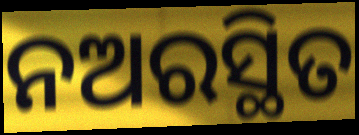
ନଅରସ୍ଥିତ